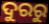
ଦୁରରୁ